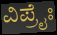
ವಿಪ್ರೈಃ